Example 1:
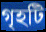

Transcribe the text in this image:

গৃহটি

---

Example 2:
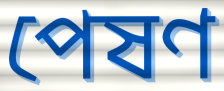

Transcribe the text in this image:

পেষণ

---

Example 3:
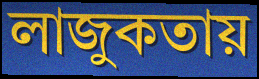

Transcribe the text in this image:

লাজুকতায়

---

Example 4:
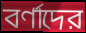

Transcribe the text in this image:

বর্ণাদের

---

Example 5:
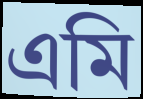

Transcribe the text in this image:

এমি